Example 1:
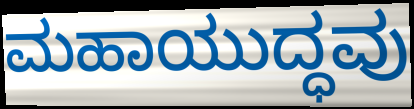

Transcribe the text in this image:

ಮಹಾಯುದ್ಧವು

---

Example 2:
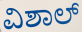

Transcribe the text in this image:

ವಿಶಾಲ್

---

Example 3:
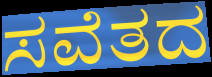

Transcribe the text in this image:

ಸವೆತದ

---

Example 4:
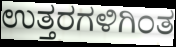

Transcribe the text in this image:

ಉತ್ತರಗಳಿಗಿಂತ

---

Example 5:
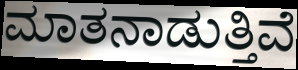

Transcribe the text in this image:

ಮಾತನಾಡುತ್ತಿವೆ